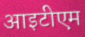
आइटीएम